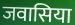
जवासिया